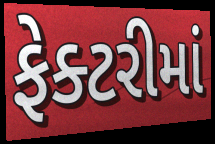
ફેક્ટરીમાં